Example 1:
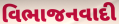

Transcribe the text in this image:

વિભાજનવાદી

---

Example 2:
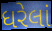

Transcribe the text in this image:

ધરેલાં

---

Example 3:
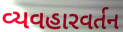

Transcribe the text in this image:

વ્યવહારવર્તન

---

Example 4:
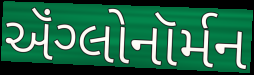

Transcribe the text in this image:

ઍંગ્લોનૉર્મન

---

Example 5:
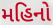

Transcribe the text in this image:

મહિનો